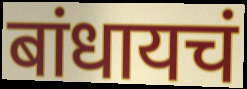
बांधायचं